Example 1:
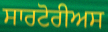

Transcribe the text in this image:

ਸਾਰਟੋਰੀਅਸ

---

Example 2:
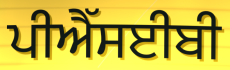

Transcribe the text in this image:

ਪੀਐੱਸਈਬੀ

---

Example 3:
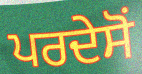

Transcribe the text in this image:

ਪਰਦੇਸੋਂ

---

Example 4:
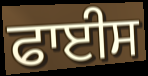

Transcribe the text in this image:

ਫਾਈਸ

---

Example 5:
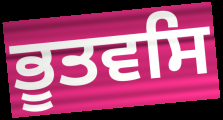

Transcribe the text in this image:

ਭੂਤਵਸਿ